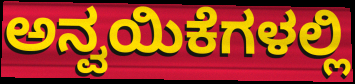
ಅನ್ವಯಿಕೆಗಳಲ್ಲಿ